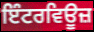
ਇੰਟਰਵਿਊਜ਼